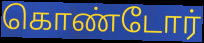
கொண்டோர்